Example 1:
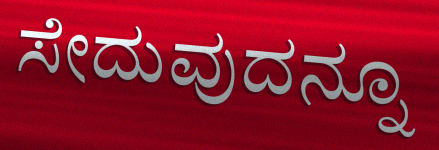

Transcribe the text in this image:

ಸೇದುವುದನ್ನೂ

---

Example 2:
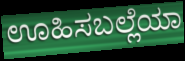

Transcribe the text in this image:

ಊಹಿಸಬಲ್ಲೆಯಾ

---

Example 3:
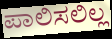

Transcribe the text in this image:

ಪಾಲಿಸಲಿಲ್ಲ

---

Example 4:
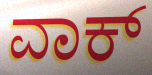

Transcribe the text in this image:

ವಾಕ್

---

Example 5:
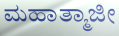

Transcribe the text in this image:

ಮಹಾತ್ಮಾಜೀ